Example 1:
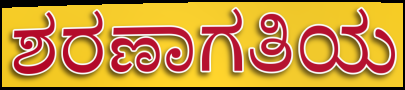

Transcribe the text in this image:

ಶರಣಾಗತಿಯ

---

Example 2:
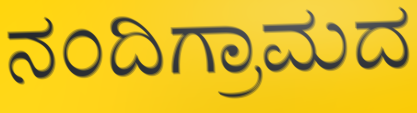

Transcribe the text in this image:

ನಂದಿಗ್ರಾಮದ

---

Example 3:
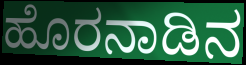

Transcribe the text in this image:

ಹೊರನಾಡಿನ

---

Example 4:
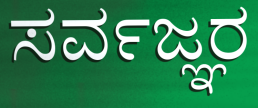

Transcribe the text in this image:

ಸರ್ವಜ್ಞರ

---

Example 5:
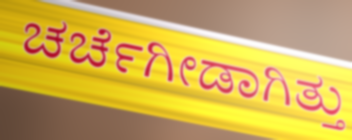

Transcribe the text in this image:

ಚರ್ಚೆಗೀಡಾಗಿತ್ತು